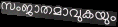
സംജാതമാവുകയും